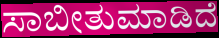
ಸಾಬೀತುಮಾಡಿದೆ